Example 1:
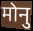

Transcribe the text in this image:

मोनु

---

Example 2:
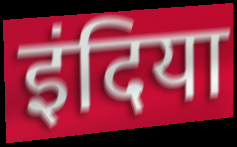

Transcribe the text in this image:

इंदिया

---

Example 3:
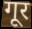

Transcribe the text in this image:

गूर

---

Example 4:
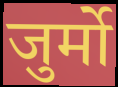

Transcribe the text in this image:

जुर्मो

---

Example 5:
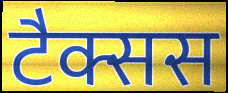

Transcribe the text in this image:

टैक्सस